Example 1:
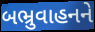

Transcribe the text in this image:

બભ્રુવાહનને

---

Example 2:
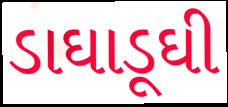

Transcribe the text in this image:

ડાઘાડૂઘી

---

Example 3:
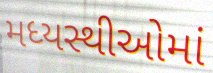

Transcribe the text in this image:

મધ્યસ્થીઓમાં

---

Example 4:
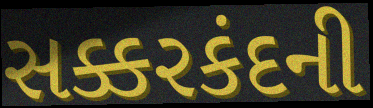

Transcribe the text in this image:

સક્કરકંદની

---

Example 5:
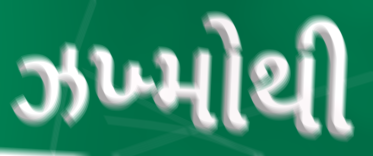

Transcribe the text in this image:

ઝખ્મોથી